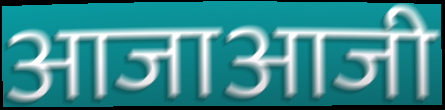
आजाआजी